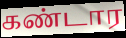
கண்டார